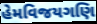
હેમવિજયગણિ